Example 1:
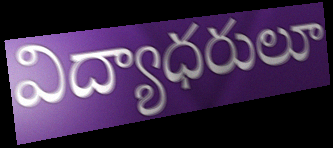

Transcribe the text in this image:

విద్యాధరులూ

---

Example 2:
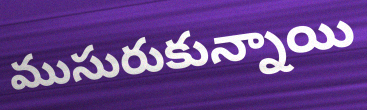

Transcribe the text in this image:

ముసురుకున్నాయి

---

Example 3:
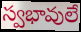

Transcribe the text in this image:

స్వభావులే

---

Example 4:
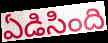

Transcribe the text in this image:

ఏడిసింది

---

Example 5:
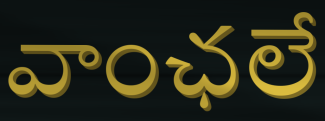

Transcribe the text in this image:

వాంఛలే